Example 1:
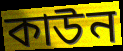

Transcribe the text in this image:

কাউন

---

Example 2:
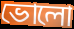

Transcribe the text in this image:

ভোলো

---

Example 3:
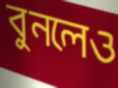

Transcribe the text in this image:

বুনলেও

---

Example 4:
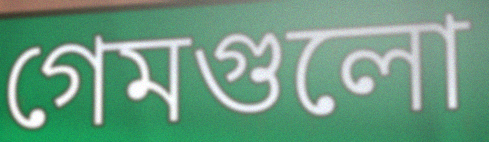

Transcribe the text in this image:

গেমগুলো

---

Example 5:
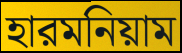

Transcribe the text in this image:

হারমনিয়াম